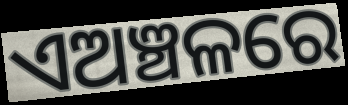
ଏଅଞ୍ଚଳରେ